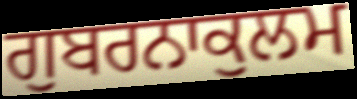
ਗੁਬਰਨਾਕੁਲਮ